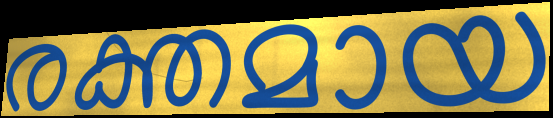
രക്തമായ